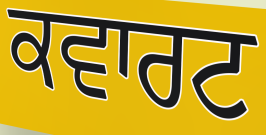
ਕਵਾਰਟ